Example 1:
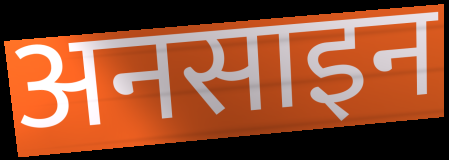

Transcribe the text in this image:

अनसाइन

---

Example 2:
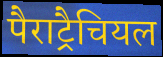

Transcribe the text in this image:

पैराट्रैचियल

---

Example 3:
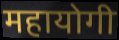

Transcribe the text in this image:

महायोगी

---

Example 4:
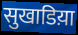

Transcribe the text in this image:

सुखाडिय़ा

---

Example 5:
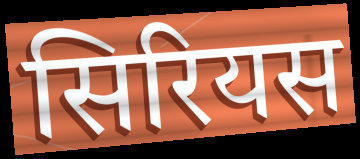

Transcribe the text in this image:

सिरियस